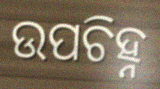
ଉପଚିହ୍ନ